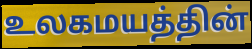
உலகமயத்தின்